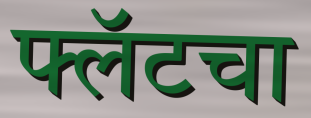
फ्लॅटचा